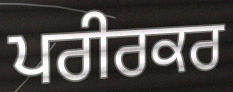
ਪਰੀਰਕਰ